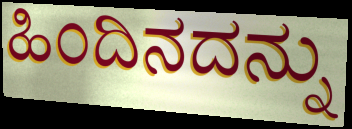
ಹಿಂದಿನದನ್ನು